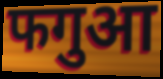
फगुआ